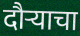
दौऱ्याचा